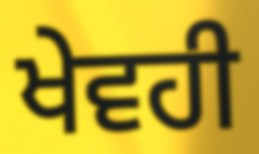
ਖੇਵਹੀ